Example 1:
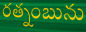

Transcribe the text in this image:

రత్నంబును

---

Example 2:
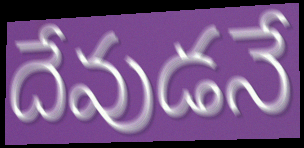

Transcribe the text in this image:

దేవుడనే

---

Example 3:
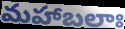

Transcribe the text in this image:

మహాబలాః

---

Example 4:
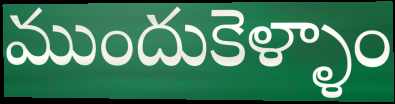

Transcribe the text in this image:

ముందుకెళ్ళాం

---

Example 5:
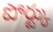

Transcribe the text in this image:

పోర్ట్కు